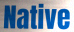
Native